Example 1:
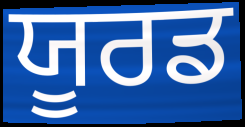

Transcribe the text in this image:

ਯੂਰਡ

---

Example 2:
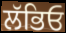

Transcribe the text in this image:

ਲੱਭਿਓ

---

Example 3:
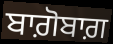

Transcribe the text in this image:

ਬਾਗ਼ੋਬਾਗ਼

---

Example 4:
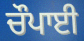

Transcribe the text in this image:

ਚੌਪਾਈ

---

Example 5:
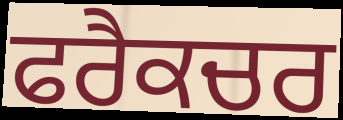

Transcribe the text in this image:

ਫਰੈਕਚਰ